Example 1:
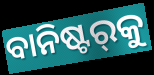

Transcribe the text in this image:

ବାନିଷ୍ଟର୍‍କୁ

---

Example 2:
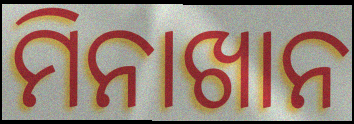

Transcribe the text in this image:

ମିନାଖାନ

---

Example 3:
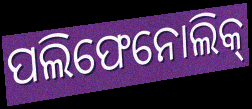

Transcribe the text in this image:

ପଲିଫେନୋଲିକ୍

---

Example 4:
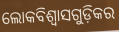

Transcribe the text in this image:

ଲୋକବିଶ୍ଵାସଗୁଡ଼ିକର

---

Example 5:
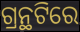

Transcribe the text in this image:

ଗ୍ରନ୍ଥଟିରେ